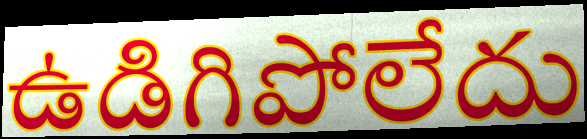
ఉడిగిపోలేదు